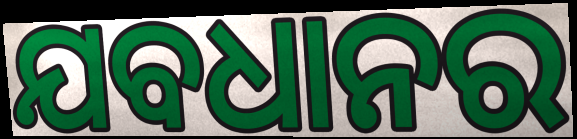
ଯବଧାନର